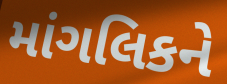
માંગલિકને